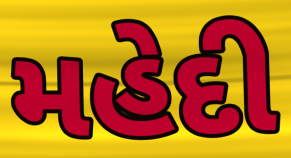
મહેદી